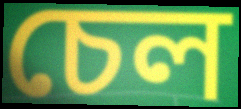
চেল